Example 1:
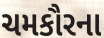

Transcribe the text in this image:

ચમકૌરના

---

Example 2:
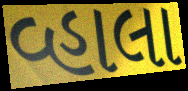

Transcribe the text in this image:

વ્હાલા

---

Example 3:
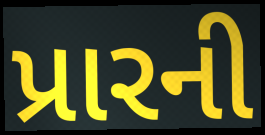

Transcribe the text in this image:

પ્રારની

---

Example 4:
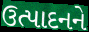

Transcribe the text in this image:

ઉત્પાદનને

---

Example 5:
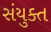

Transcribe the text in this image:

સંયુક્ત